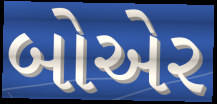
બોએર